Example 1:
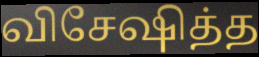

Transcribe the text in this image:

விசேஷித்த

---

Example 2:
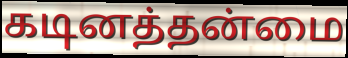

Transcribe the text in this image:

கடினத்தன்மை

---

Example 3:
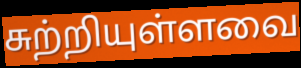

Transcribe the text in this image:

சுற்றியுள்ளவை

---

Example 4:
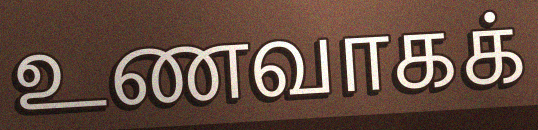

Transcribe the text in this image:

உணவாகக்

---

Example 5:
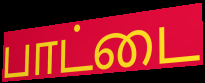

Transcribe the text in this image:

பாட்டை